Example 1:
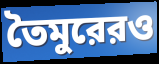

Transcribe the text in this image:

তৈমুরেরও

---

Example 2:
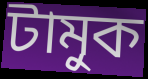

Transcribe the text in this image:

টামুক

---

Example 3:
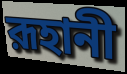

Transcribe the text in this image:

রূহানী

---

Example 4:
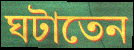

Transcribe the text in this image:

ঘটাতেন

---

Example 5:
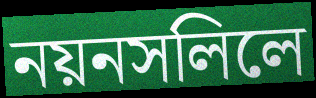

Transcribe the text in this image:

নয়নসলিলে